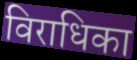
विराधिका